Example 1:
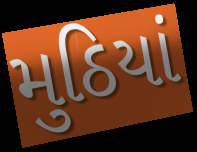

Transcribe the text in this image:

મુઠિયાં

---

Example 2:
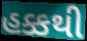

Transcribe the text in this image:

હક્કથી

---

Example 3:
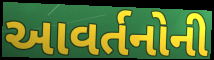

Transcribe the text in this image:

આવર્તનોની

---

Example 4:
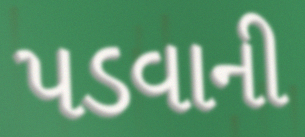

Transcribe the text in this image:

પડવાની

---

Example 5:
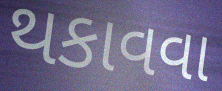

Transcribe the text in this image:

થકાવવા